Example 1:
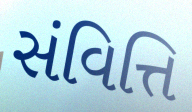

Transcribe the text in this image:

સંવિત્તિ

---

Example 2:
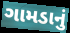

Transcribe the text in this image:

ગામડાનું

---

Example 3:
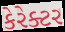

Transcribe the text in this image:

કેરેક્ટર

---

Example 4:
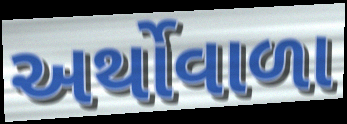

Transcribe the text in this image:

અર્થોવાળા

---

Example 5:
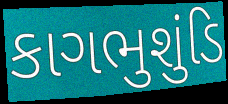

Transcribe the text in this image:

કાગભુશુંડિ